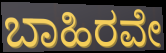
ಬಾಹಿರವೇ